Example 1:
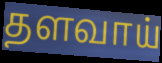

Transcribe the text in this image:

தளவாய்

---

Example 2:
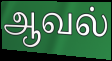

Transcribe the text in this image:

ஆவல்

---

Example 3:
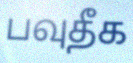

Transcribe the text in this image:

பவுதீக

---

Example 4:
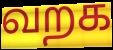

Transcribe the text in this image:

வறக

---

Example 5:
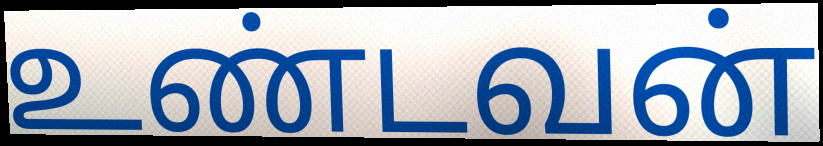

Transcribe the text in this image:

உண்டவன்